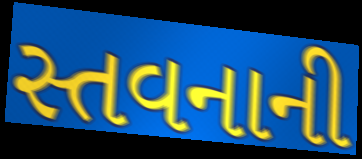
સ્તવનાની